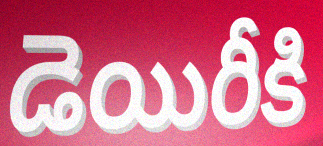
డెయిరీకి